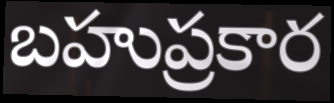
బహుప్రకార